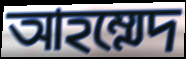
আহম্মেদ